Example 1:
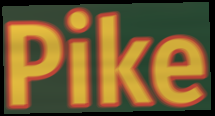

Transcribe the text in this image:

Pike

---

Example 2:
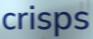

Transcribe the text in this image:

crisps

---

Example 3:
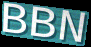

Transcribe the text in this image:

BBN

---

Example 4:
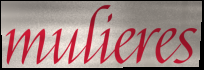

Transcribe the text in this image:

mulieres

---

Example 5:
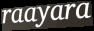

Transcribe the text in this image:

raayara